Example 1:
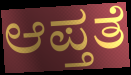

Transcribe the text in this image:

ಆಪ್ತತೆ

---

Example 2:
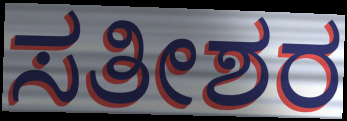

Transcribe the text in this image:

ಸತೀಶರ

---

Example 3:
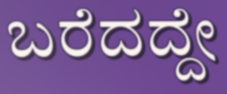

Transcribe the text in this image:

ಬರೆದದ್ದೇ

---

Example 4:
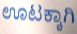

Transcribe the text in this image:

ಊಟಕ್ಕಾಗಿ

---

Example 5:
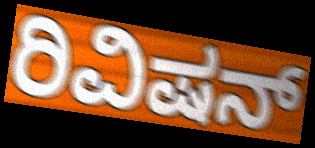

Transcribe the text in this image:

ರಿವಿಷನ್